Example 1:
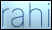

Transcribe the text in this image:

rahi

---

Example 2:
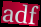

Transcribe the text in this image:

adf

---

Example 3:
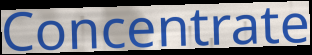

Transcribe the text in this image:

Concentrate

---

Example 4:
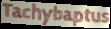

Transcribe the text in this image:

Tachybaptus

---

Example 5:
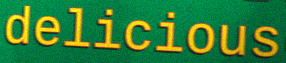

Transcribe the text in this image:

delicious